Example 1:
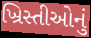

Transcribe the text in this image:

ખ્રિસ્તીઓનું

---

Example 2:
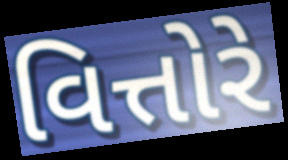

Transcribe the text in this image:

વિત્તોરે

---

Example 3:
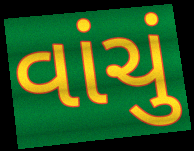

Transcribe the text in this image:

વાંચું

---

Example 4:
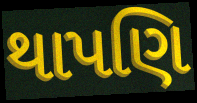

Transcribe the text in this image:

થાપણિ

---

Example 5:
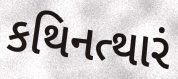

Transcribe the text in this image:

કથિનત્થારં